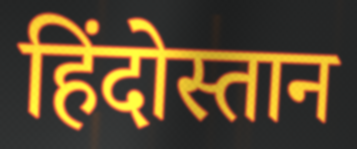
हिंदोस्तान